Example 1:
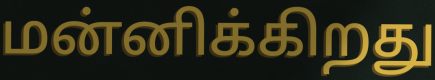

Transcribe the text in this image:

மன்னிக்கிறது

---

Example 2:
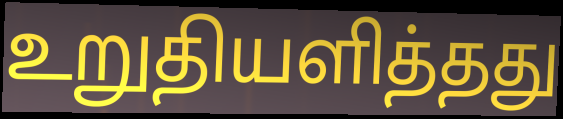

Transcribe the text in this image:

உறுதியளித்தது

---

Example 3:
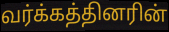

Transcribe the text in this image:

வர்க்கத்தினரின்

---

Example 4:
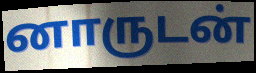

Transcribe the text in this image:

னாருடன்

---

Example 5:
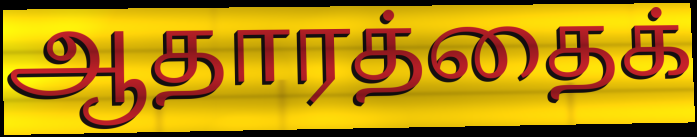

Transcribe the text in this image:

ஆதாரத்தைக்